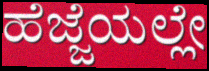
ಹೆಜ್ಜೆಯಲ್ಲೇ